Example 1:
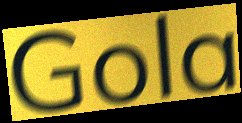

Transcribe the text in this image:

Gola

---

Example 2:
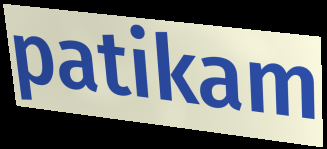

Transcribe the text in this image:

patikam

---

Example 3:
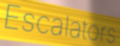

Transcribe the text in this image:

Escalators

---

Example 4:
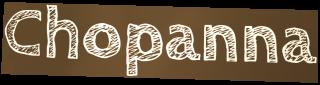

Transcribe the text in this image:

Chopanna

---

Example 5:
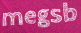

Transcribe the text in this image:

megsb